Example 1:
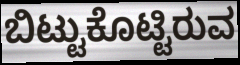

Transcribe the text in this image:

ಬಿಟ್ಟುಕೊಟ್ಟಿರುವ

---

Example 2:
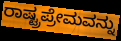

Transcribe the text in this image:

ರಾಷ್ಟ್ರಪ್ರೇಮವನ್ನು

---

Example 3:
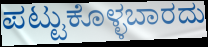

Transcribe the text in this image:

ಪಟ್ಟುಕೊಳ್ಳಬಾರದು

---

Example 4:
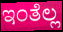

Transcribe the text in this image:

ಇಂತೆಲ್ಲ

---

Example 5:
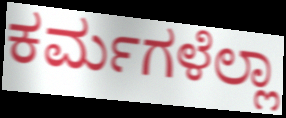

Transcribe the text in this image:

ಕರ್ಮಗಳೆಲ್ಲಾ